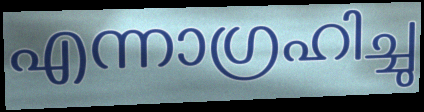
എന്നാഗ്രഹിച്ചു